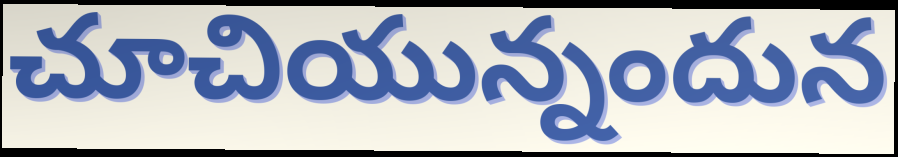
చూచియున్నందున